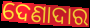
ଦେଣାଦାର